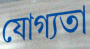
যোগ্যতা